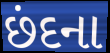
છંદના